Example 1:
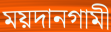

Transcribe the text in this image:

ময়দানগামী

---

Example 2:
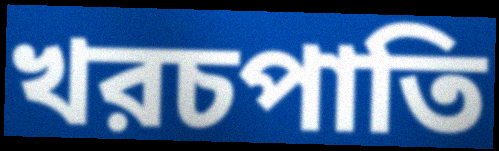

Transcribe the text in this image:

খরচপাতি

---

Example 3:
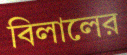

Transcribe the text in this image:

বিলালের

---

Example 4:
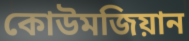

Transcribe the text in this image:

কোউমজিয়ান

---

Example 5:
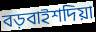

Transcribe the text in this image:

বড়বাইশদিয়া